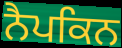
ਨੈਪਕਿਨ